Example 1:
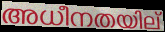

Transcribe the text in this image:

അധീനതയില്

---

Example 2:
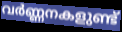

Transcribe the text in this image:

വർണ്ണനകളുണ്ട്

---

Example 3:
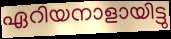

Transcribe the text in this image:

ഏറിയനാളായിട്ടു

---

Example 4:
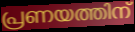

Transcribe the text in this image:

പ്രണയത്തിന്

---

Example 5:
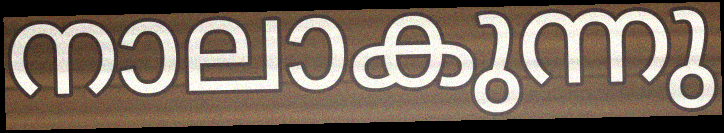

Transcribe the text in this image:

നാലാകുന്നു